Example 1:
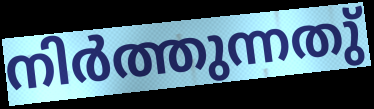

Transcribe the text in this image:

നിർത്തുന്നതു്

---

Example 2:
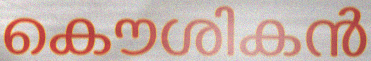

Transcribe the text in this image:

കൌശികൻ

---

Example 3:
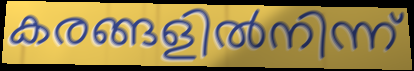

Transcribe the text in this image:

കരങ്ങളിൽനിന്ന്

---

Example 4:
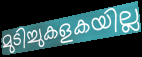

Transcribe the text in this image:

മുടിച്ചുകളകയില്ല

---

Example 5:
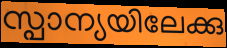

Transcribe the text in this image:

സ്പാന്യയിലേക്കു